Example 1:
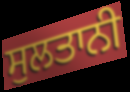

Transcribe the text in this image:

ਸੁਲਤਾਨੀ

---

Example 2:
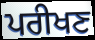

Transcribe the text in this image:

ਪਰੀਖਣ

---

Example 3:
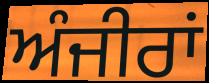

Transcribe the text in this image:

ਅੰਜੀਰਾਂ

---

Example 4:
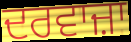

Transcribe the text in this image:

ਦਰਵਾਜ਼ਾ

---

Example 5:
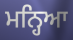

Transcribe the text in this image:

ਮਨ੍ਹਿਆ